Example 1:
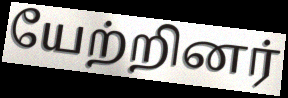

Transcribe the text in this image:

யேற்றினர்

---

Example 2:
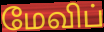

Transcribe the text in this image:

மேவிப்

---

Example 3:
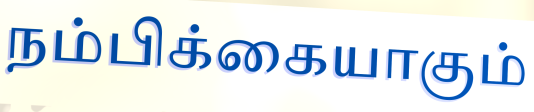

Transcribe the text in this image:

நம்பிக்கையாகும்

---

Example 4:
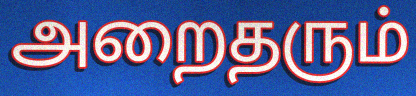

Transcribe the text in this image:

அறைதரும்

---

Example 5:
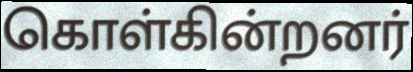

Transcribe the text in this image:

கொள்கின்றனர்